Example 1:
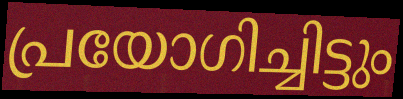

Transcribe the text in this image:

പ്രയോഗിച്ചിട്ടും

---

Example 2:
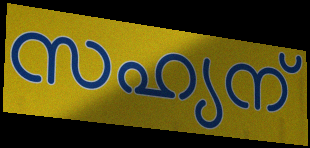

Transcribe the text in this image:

സഹ്യന്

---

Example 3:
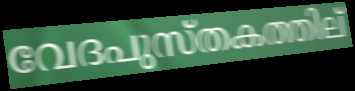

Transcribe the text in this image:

വേദപുസ്തകത്തില്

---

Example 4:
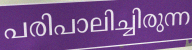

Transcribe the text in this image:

പരിപാലിച്ചിരുന്ന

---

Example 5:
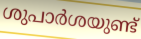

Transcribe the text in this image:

ശുപാർശയുണ്ട്